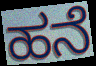
ಹನೆ